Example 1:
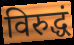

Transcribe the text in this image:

विरुद्धं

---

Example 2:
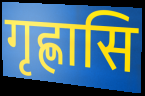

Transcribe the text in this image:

गृह्णासि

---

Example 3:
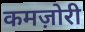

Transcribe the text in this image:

कमज़ोरी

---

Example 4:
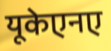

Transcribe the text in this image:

यूकेएनए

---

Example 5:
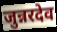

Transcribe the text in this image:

जुन्नरदेव